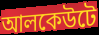
আলকেউটে